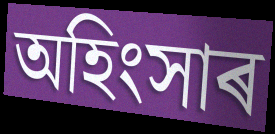
অহিংসাৰ